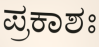
ಪ್ರಕಾಶಃ